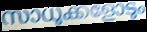
സാധുക്കളോടും